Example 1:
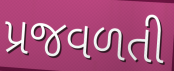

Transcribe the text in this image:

પ્રજવળતી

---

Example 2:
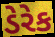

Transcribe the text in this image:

ડેરેક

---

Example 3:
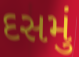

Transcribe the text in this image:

દસમું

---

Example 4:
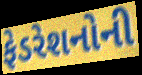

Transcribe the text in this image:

ફેડરેશનોની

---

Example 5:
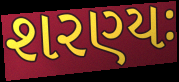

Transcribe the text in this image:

શરણ્યઃ